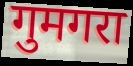
गुमगरा